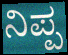
ನಿಪ್ಪ